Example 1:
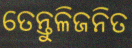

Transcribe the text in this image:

ତେନ୍ତୁଳିଜନିତ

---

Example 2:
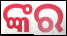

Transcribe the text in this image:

ଙ୍କର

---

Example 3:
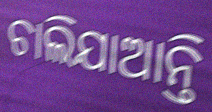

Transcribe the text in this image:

ଚାଲିଯାଆନ୍ତି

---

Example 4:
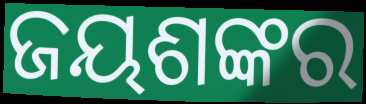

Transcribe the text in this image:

ଜୟଶଙ୍କର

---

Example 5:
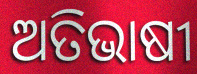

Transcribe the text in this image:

ଅତିଭାଷୀ